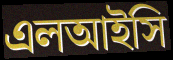
এলআইসি